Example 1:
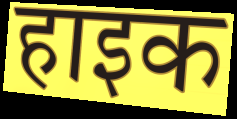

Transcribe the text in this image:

हाइक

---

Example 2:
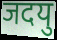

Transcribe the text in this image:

जदयु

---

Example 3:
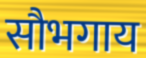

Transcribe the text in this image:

सौभगाय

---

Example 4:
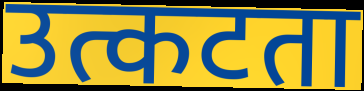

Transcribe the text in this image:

उत्कटता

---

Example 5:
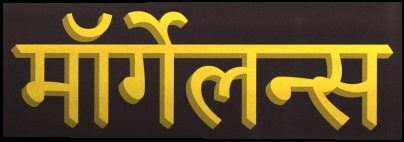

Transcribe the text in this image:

मॉर्गेलन्स